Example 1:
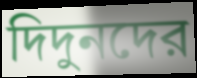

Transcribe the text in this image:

দিদুনদের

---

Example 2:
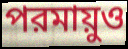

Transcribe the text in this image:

পরমায়ুও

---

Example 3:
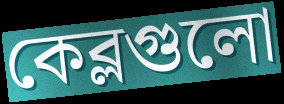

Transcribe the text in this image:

কেব্লগুলো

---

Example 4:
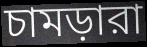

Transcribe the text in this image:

চামড়ারা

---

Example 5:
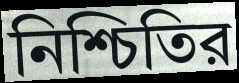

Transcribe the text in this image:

নিশ্চিতির